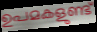
ഉപമകളുണ്ട്